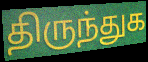
திருந்துக